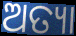
ଅତ୍ୟା